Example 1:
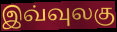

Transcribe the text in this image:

இவ்வுலகு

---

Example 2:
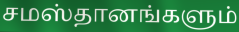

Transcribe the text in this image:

சமஸ்தானங்களும்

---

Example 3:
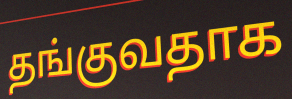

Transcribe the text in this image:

தங்குவதாக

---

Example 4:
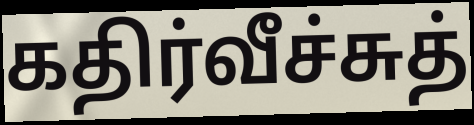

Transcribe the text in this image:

கதிர்வீச்சுத்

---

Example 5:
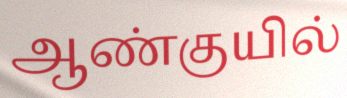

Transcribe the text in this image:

ஆண்குயில்